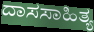
ದಾಸಸಾಹಿತ್ಯ